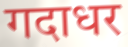
गदाधर